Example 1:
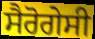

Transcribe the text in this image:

ਸੈਰੋਗੇਸੀ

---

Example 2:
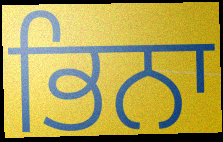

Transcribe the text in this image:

ਭਿਨਾ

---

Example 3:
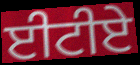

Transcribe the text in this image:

ਈਟੀਏ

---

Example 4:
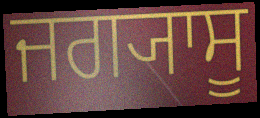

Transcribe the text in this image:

ਜਗ੍ਯਾਸੂ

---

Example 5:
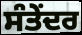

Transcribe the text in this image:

ਸੰਤੇਂਦਰ